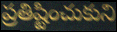
ప్రతిష్టించుకుని